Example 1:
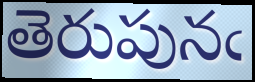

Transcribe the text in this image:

తెరుపునఁ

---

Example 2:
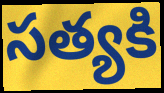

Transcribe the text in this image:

సత్యకి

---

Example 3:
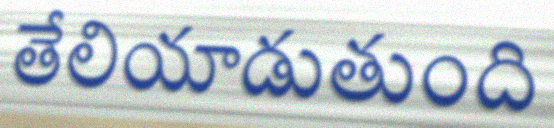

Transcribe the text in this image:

తేలియాడుతుంది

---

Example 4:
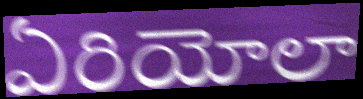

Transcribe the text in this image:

ఏరియోలా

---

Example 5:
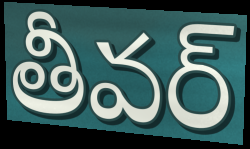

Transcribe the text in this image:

తీవర్